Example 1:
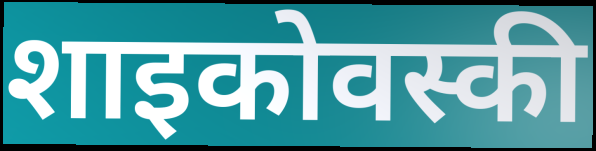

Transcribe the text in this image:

शाइकोवस्की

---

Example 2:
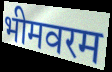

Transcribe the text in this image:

भीमवरम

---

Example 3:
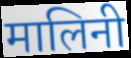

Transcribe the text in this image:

मालिनी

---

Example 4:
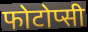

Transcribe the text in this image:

फोटोप्सी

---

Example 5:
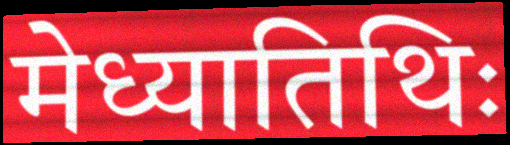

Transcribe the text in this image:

मेध्यातिथिः